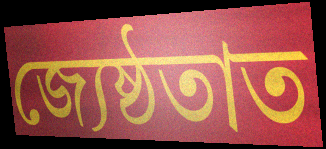
জ্যেষ্ঠতাত